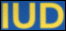
IUD